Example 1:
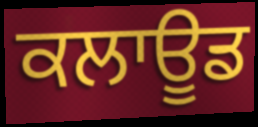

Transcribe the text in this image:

ਕਲਾਊਡ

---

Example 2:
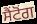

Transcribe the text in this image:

ਸੈਂਟੋਂਗ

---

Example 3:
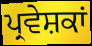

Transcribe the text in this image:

ਪ੍ਰਵੇਸ਼ਕਾਂ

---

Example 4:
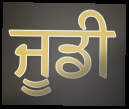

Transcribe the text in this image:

ਜੂਡੀ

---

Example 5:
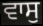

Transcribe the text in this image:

ਵਾਸੁ